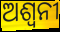
ଅଶ୍ଵନୀ